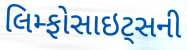
લિમ્ફોસાઇટ્સની